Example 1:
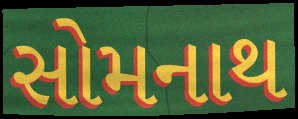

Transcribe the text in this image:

સોમનાથ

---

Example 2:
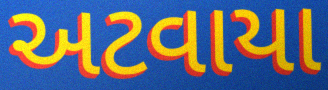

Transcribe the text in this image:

અટવાયા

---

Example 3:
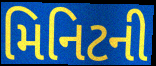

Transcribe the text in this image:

મિનિટની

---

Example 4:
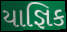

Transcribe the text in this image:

યાજ્ઞિક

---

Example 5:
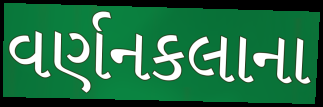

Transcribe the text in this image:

વર્ણનકલાના